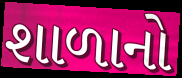
શાળાનો